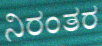
ನಿರಂತರ